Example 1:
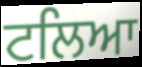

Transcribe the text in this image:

ਟਲਿਆ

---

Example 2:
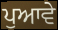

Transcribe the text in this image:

ਪੁਆਵੇ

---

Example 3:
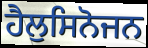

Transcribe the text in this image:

ਹੈਲੁਸਿਨੋਜਨ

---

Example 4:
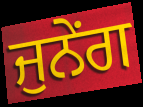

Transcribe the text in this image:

ਜੁਨੇਂਗ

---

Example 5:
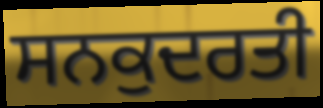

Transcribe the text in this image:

ਸਨਕੁਦਰਤੀ